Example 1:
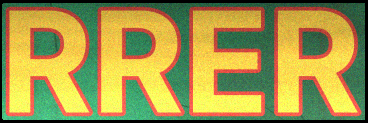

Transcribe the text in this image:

RRER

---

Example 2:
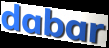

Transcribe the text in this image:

dabar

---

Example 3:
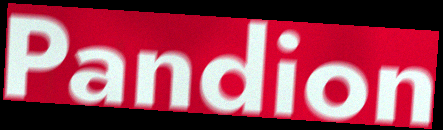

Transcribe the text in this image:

Pandion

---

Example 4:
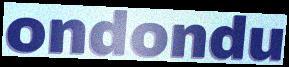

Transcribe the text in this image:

ondondu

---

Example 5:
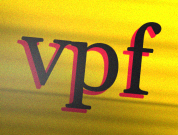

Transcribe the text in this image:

vpf